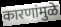
कारणांमुळे